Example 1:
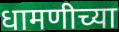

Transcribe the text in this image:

धामणीच्या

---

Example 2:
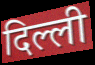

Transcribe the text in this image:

दिल्‍ली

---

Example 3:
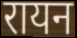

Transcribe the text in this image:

रायन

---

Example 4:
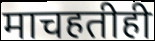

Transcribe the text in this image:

माचहतीही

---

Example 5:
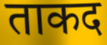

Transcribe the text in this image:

ताकद